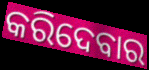
କରିଦେବାର